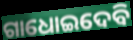
ଗାଧୋଇଦେବି